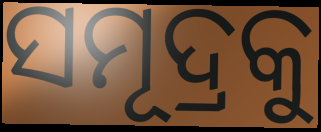
ସମୂଦ୍ରକୁ